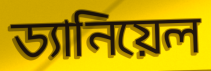
ড্যানিয়েল